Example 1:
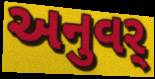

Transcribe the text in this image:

અનુવર્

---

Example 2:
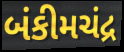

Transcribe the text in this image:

બંકીમચંદ્ર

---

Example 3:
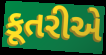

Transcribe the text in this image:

કૂતરીએ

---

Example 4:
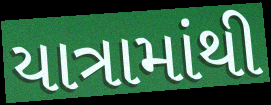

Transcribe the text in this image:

યાત્રામાંથી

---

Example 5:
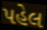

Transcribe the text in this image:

પહેલ